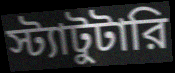
স্ট্যাটুটারি